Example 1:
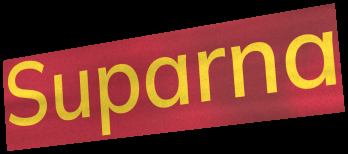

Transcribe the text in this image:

Suparna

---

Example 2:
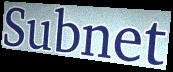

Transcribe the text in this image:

Subnet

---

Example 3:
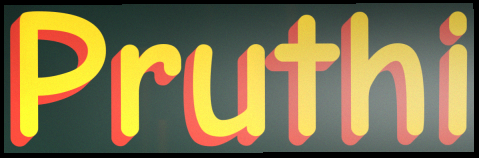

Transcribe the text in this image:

Pruthi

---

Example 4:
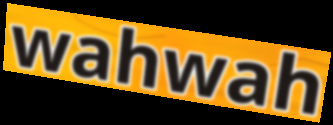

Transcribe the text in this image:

wahwah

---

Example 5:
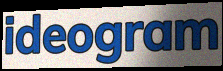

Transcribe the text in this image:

ideogram